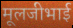
मूलजीभाई